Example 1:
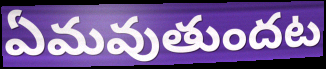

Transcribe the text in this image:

ఏమవుతుందట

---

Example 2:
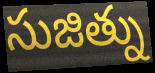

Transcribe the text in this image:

సుజిత్ను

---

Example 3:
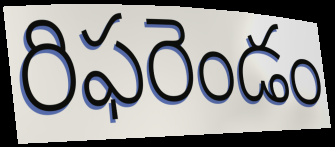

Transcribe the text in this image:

రిఫరెండం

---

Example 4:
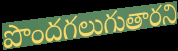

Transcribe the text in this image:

పొందగలుగుతారని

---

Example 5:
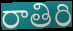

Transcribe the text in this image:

రాతిరి